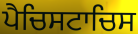
ਪੈਚਿਸਟਾਚਿਸ